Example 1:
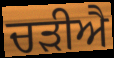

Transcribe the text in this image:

ਚੜੀਐ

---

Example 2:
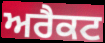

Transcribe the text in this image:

ਅਰੈਕਟ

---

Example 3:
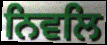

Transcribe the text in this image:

ਨਿਵਲਿ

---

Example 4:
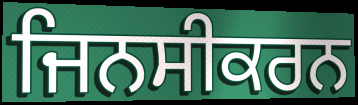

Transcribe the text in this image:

ਜਿਨਸੀਕਰਨ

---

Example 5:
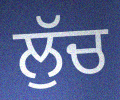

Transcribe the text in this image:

ਲੁੱਚ